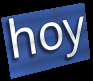
hoy